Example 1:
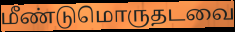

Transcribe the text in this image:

மீண்டுமொருதடவை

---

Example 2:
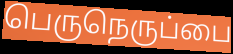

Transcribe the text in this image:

பெருநெருப்பை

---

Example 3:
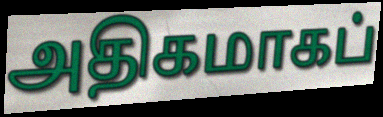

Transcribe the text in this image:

அதிகமாகப்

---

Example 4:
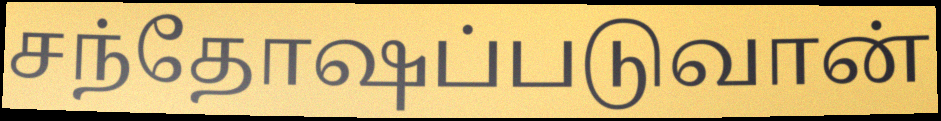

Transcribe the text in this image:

சந்தோஷப்படுவான்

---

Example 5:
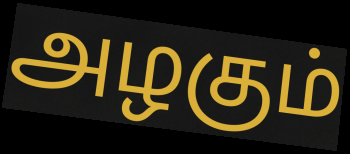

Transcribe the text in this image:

அழகும்